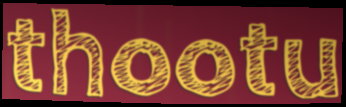
thootu